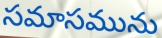
సమాసమును